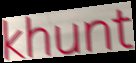
khunt